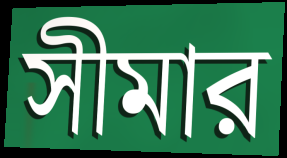
সীমার